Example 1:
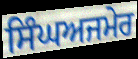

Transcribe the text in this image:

ਸਿੰਘਅਜਮੇਰ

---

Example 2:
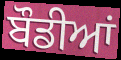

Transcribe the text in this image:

ਬੌਡੀਆਂ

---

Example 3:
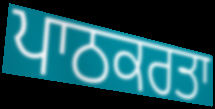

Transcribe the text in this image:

ਪਾਠਕਰਤਾ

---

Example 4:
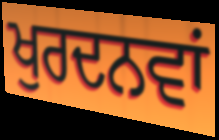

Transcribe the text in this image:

ਖੁਰਦਨਵਾਂ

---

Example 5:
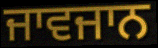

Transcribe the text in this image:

ਜਾਵਜਾਨ